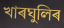
খাৰঘুলিৰ